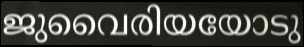
ജുവൈരിയയോടു